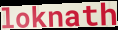
loknath